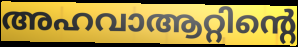
അഹവാആറ്റിന്റെ